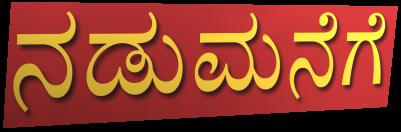
ನಡುಮನೆಗೆ